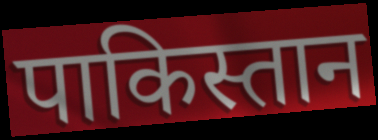
पाकिस्तान